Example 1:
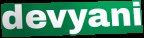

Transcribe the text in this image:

devyani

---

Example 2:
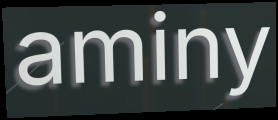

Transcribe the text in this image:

aminy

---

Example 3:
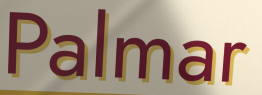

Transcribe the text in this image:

Palmar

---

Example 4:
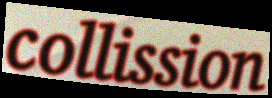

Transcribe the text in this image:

collission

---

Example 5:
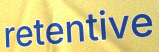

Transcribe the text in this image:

retentive